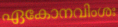
ഏകോനവിംശഃ